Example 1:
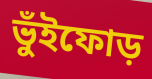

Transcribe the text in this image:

ভুঁইফোড়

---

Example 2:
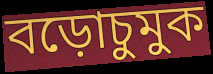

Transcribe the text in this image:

বড়োচুমুক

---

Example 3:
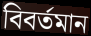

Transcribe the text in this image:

বিবর্তমান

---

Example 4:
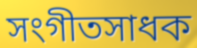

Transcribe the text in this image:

সংগীতসাধক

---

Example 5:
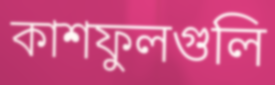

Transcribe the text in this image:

কাশফুলগুলি